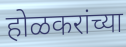
होळकरांच्या